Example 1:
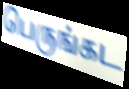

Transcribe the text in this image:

பெருங்கட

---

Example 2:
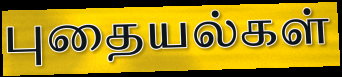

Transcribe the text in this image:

புதையல்கள்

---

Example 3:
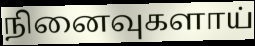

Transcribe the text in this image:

நினைவுகளாய்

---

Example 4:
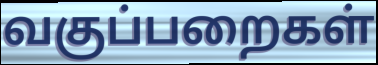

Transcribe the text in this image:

வகுப்பறைகள்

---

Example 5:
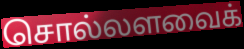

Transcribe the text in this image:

சொல்லளவைக்